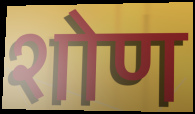
शोण